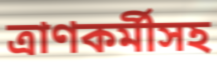
ত্রাণকর্মীসহ